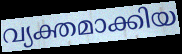
വ്യക്തമാക്കിയ